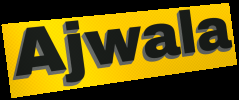
Ajwala